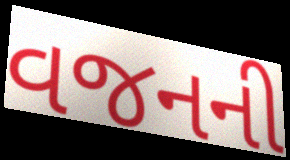
વજનની